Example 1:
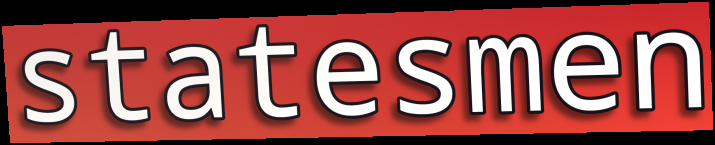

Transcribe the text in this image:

statesmen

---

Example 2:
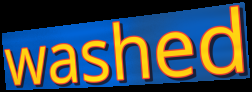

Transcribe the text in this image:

washed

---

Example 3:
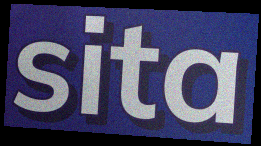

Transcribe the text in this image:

sita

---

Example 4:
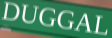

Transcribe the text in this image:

DUGGAL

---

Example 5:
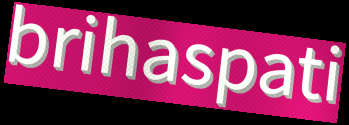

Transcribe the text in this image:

brihaspati